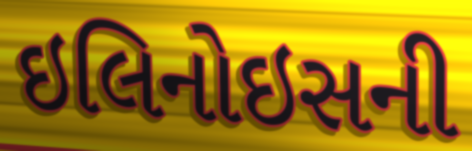
ઇલિનોઇસની